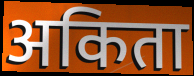
अकिता